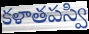
కళాతపస్వి